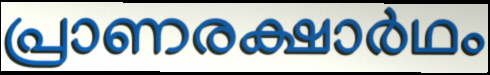
പ്രാണരക്ഷാർഥം